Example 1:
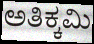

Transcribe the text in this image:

ಅತಿಕ್ಕಮಿ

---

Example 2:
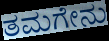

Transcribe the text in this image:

ತಮಗೇನು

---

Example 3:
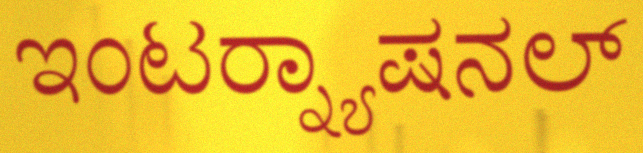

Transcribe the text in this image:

ಇಂಟರ್‍ನ್ಯಾಷನಲ್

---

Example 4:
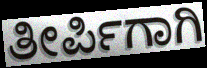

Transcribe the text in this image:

ತೀರ್ಪಿಗಾಗಿ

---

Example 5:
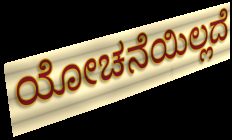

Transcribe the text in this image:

ಯೋಚನೆಯಿಲ್ಲದೆ